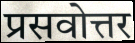
प्रसवोत्तर